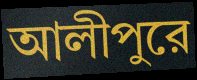
আলীপুরে